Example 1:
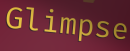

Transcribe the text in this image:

Glimpse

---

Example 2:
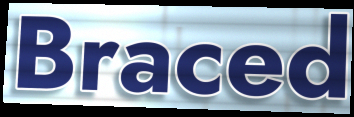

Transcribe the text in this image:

Braced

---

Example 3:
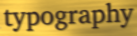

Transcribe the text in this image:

typography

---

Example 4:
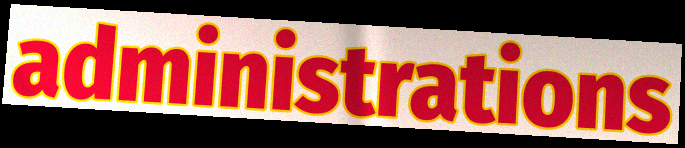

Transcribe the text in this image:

administrations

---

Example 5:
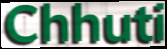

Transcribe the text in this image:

Chhuti